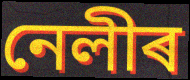
নেলীৰ